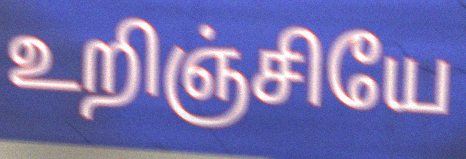
உறிஞ்சியே